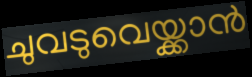
ചുവടുവെയ്ക്കാൻ